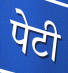
पेटी